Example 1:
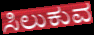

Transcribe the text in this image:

ಸಿಲುಕುವ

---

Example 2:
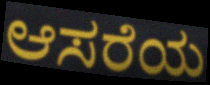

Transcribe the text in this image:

ಆಸರೆಯ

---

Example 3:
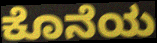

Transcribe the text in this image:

ಕೊನೆಯ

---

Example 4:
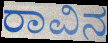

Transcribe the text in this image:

ರಾವಿನ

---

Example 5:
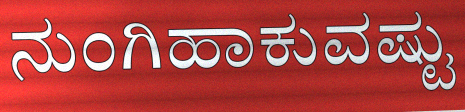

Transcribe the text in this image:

ನುಂಗಿಹಾಕುವಷ್ಟು